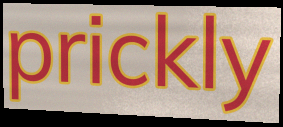
prickly